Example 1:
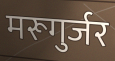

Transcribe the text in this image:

मरूगुर्जर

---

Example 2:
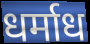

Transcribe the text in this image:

धर्माध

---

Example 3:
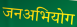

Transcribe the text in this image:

जनअभियोग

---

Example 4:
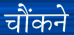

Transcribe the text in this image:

चौंकने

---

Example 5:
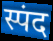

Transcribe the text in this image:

स्पंद